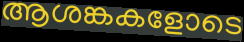
ആശങ്കകളോടെ